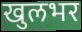
खुलभर